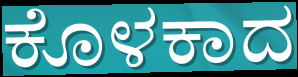
ಕೊಳಕಾದ